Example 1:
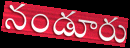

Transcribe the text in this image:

నండూరు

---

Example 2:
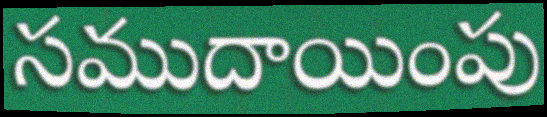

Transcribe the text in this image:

సముదాయింపు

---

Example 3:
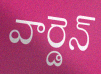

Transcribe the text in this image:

వార్డెన్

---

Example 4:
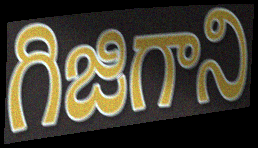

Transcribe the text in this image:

గిజిగాని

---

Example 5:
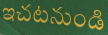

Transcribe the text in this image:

ఇచటనుండి